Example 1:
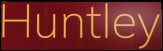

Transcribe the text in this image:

Huntley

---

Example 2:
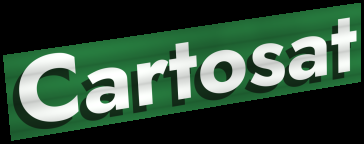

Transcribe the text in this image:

Cartosat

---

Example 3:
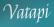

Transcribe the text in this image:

Vatapi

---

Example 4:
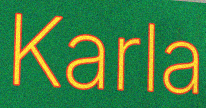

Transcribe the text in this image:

Karla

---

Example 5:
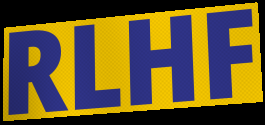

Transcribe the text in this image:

RLHF